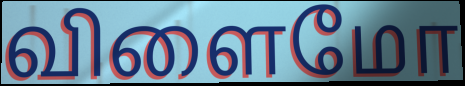
விளைமோ